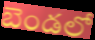
బెండలో